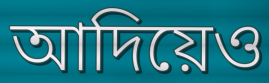
আদিয়েও